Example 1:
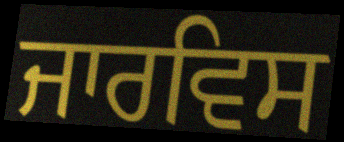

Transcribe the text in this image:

ਜਾਰਵਿਸ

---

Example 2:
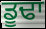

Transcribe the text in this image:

ਡੂਢਾ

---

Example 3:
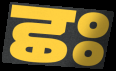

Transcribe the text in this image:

ਛਃ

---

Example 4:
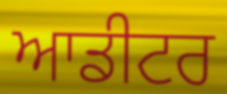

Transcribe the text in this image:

ਆਡੀਟਰ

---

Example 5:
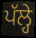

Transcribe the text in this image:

ਪੱਲ੍ਹੇ